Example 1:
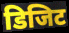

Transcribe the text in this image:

डिजिट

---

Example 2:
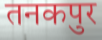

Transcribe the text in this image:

तनकपुर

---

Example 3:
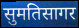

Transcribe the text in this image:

सुमतिसागर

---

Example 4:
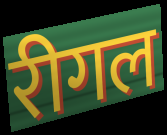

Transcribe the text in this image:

रीगल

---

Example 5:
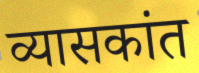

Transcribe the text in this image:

व्यासकांत